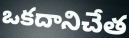
ఒకదానిచేత